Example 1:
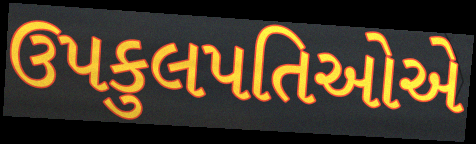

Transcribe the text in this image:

ઉપકુલપતિઓએ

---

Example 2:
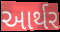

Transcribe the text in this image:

આર્થર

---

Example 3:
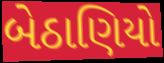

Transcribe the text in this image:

બેઠાણિયો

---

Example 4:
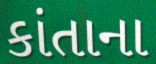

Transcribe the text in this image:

કાંતાના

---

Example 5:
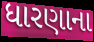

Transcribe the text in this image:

ધારણાના